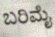
ಬರಿಮೈ